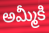
అమ్మీకి